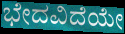
ಭೇದವಿದೆಯೇ